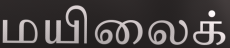
மயிலைக்